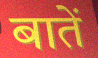
बातें